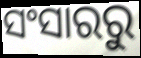
ସଂସାରରୁ